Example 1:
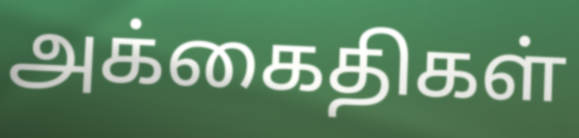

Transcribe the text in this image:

அக்கைதிகள்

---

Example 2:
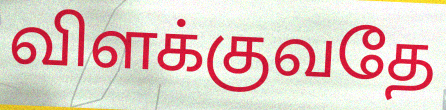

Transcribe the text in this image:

விளக்குவதே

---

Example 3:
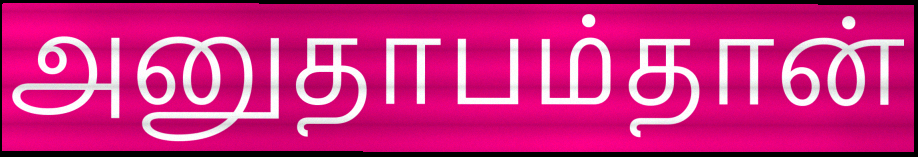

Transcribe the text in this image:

அனுதாபம்தான்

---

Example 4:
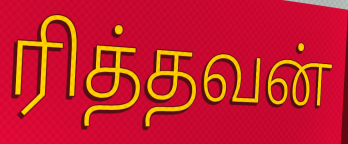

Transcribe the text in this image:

ரித்தவன்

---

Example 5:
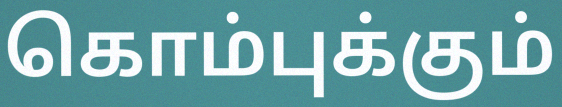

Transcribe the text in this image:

கொம்புக்கும்